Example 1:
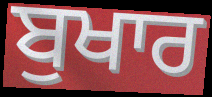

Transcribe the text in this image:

ਬੁਖਾਰ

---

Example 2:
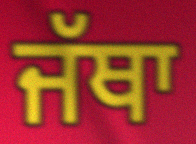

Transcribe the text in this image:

ਜੱਥਾ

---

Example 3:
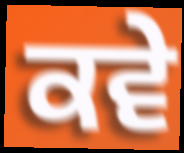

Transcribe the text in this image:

ਕਵੇ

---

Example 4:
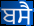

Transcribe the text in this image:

ਬਸੈ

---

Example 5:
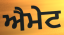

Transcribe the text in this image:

ਐਮੇਟ